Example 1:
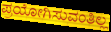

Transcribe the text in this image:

ಪ್ರಯೋಗಿಸುವಂತಿಲ್ಲ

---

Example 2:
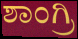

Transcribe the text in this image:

ಶಾಂಗ್ರಿ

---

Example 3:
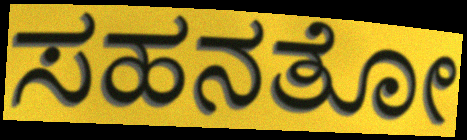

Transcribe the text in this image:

ಸಹನತೋ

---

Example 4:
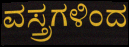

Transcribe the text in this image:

ವಸ್ತ್ರಗಳಿಂದ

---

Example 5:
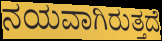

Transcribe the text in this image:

ನಯವಾಗಿರುತ್ತದೆ